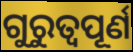
ଗୁରୁତ୍ୱପୂର୍ଣ